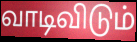
வாடிவிடும்